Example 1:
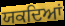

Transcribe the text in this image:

ਯਕਦਿਆਂ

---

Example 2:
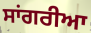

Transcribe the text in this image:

ਸਾਂਗਰੀਆ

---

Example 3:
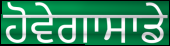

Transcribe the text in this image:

ਹੋਵੇਗਾਸਾਡੇ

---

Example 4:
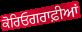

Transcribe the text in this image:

ਕੋਰਿਓਗਰਾਫ਼ੀਆਂ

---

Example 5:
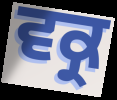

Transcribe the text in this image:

ਵਕ੍ਰ